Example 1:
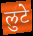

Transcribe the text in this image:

लुटे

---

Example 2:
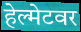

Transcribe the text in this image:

हेल्मेटवर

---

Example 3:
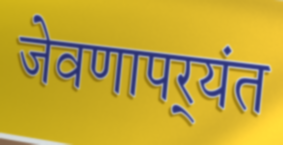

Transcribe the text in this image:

जेवणापर्यंत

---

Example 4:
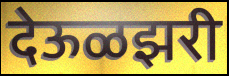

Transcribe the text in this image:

देऊळझरी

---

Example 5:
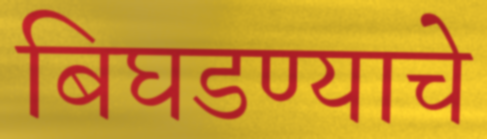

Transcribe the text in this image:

बिघडण्याचे